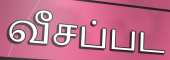
வீசப்பட